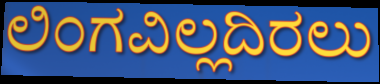
ಲಿಂಗವಿಲ್ಲದಿರಲು